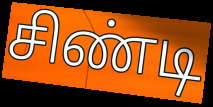
சிண்டி